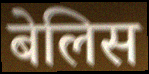
बेलिस